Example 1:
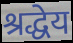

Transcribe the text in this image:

श्रद्धेय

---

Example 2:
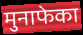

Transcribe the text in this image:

मुनाफेका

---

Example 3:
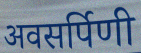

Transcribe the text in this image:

अवसर्पिणी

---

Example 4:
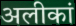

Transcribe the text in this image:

अलीकां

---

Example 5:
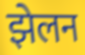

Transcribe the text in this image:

झेलन